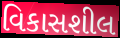
વિકાસશીલ